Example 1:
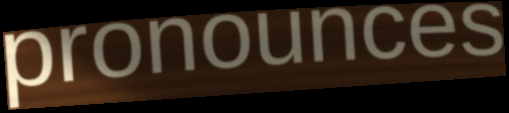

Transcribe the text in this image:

pronounces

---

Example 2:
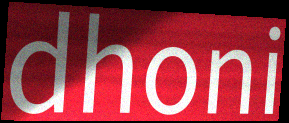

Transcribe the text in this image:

dhoni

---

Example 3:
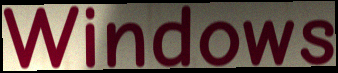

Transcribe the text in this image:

Windows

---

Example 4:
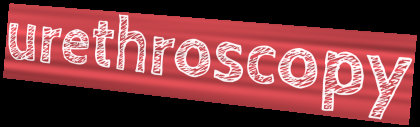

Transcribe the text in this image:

urethroscopy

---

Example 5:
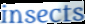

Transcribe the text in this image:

insects